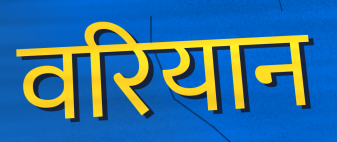
वरियान